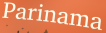
Parinama